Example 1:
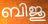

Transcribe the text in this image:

ബിജു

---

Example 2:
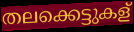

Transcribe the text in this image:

തലക്കെട്ടുകള്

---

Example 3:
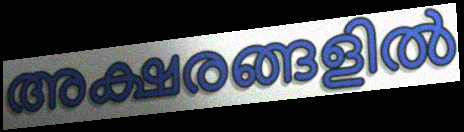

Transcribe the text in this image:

അക്ഷരങ്ങളിൽ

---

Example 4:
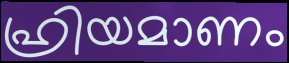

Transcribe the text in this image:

ഹ്രിയമാണം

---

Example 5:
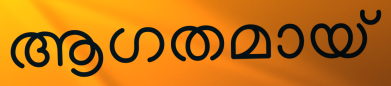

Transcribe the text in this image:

ആഗതമായ്